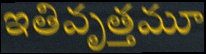
ఇతివృత్తమూ